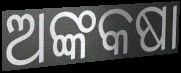
ଅଙ୍କକଷା